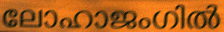
ലോഹാജംഗിൽ